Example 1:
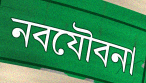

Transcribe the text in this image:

নবযৌবনা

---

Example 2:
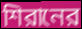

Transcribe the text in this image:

শিরানের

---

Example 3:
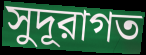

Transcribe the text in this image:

সুদূরাগত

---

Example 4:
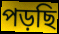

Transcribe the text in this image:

পড়ছি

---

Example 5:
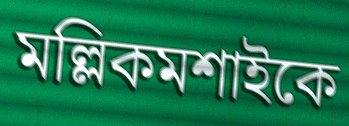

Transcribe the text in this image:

মল্লিকমশাইকে